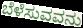
ಬೆಳೆಸುವವನು